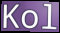
Kol